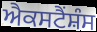
ਐਕਸਟੈਂਸ਼ੰਸ